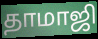
தாமாஜி